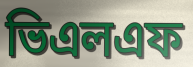
ভিএলএফ